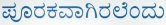
ಪೂರಕವಾಗಿರಲೆಂದು